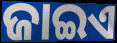
ଜାଇଏ